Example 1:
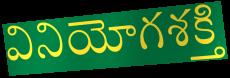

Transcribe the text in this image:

వినియోగశక్తి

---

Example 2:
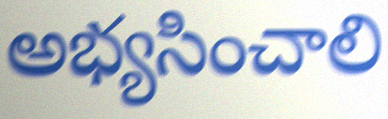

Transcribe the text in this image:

అభ్యసించాలి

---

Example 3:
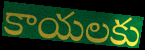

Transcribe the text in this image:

కాయలకు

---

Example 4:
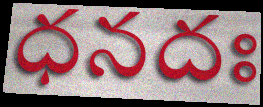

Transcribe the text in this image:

ధనదః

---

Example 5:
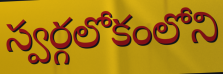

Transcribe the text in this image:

స్వర్గలోకంలోని